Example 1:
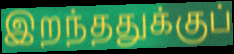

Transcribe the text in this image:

இறந்ததுக்குப்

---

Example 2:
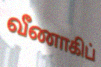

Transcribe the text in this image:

வீணாகிப்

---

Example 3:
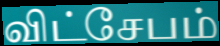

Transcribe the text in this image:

விட்சேபம்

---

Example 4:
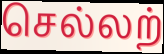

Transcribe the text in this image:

செல்லற்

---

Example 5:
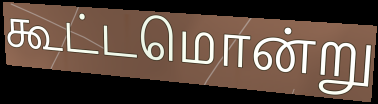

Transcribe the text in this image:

கூட்டமொன்று